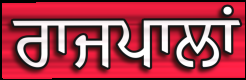
ਰਾਜਪਾਲਾਂ